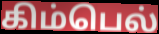
கிம்பெல்